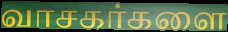
வாசகர்களை